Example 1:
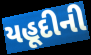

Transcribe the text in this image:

યહૂદીની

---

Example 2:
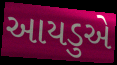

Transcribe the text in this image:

આયડુએ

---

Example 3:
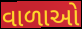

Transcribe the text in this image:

વાળાઓ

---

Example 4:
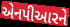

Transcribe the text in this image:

એનપીઆરને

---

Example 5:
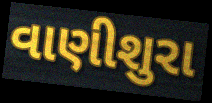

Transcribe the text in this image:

વાણીશુરા